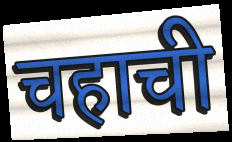
चहाची